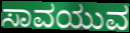
ಸಾವಯುವ